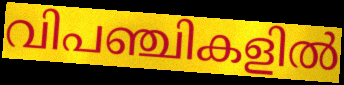
വിപഞ്ചികളിൽ